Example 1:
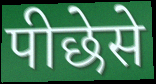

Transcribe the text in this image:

पीछेसे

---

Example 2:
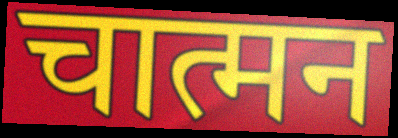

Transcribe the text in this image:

चात्मन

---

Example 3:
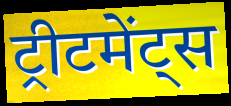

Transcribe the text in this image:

ट्रीटमेंट्स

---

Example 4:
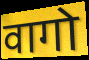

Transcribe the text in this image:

वागो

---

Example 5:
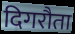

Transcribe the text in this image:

दिगरौता